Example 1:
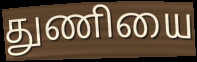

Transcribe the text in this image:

துணியை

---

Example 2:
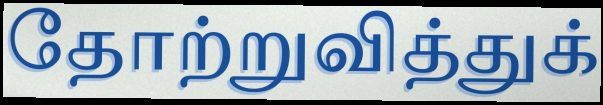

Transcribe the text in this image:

தோற்றுவித்துக்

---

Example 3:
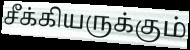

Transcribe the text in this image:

சீக்கியருக்கும்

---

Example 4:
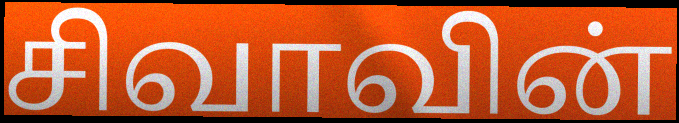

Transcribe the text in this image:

சிவாவின்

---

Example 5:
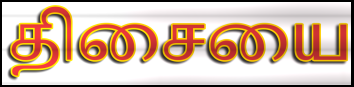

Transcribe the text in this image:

திசையை